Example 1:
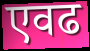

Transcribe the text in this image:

एवढ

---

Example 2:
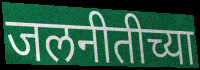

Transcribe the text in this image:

जलनीतीच्या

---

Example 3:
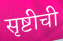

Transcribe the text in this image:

सृष्टीची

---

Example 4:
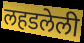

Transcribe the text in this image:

लहडलेली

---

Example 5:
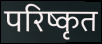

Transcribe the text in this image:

परिष्कृत